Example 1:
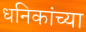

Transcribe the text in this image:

धनिकांच्या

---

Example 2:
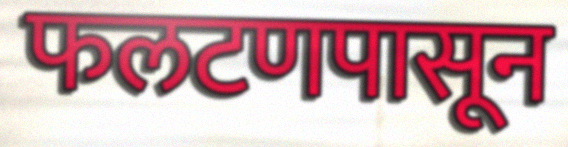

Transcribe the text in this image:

फलटणपासून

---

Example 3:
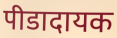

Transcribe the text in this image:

पीडादायक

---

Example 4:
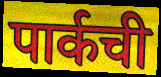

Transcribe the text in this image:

पार्कची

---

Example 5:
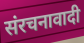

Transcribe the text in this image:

संरचनावादी